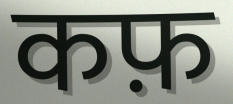
कफ़